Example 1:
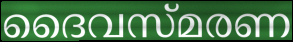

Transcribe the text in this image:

ദൈവസ്മരണ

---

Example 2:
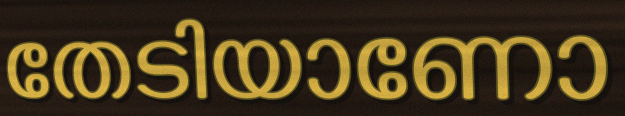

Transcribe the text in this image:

തേടിയാണോ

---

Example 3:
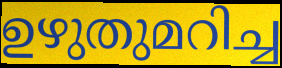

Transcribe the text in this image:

ഉഴുതുമറിച്ച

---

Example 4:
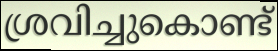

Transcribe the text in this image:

ശ്രവിച്ചുകൊണ്ട്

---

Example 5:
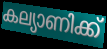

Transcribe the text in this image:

കല്യാണിക്ക്